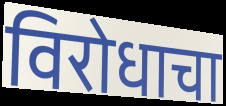
विरोधाचा